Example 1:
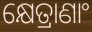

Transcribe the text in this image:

କ୍ଷେତ୍ରାଣାଂ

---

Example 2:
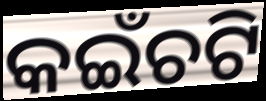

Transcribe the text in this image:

କଇଁଚଟି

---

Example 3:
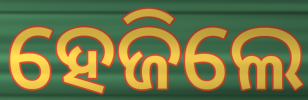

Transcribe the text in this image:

ହେଜିଲେ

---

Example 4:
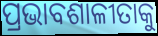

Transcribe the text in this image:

ପ୍ରଭାବଶାଳୀତାକୁ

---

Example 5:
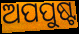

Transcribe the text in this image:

ଅପପୁଷ୍ଟ